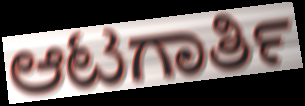
ಆಟಗಾರ್ತಿ